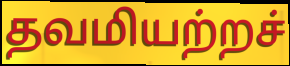
தவமியற்றச்